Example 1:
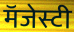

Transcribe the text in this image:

मॅजेस्टी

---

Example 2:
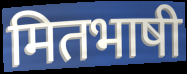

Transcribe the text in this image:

मितभाषी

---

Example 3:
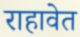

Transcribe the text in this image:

राहावेत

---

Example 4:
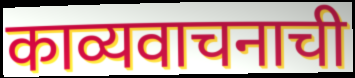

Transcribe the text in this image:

काव्यवाचनाची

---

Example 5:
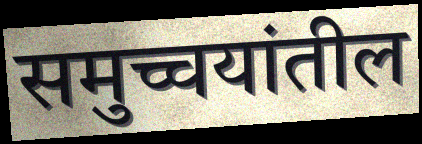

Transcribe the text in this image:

समुच्चयांतील